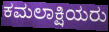
ಕಮಲಾಕ್ಷಿಯರು